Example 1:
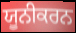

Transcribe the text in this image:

ਯੂਨੀਕਰਨ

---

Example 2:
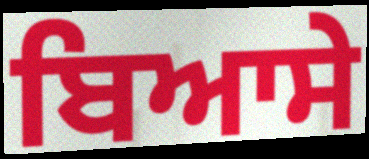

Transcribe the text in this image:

ਬਿਆਸੇ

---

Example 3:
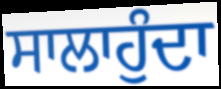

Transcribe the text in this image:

ਸਾਲਾਹੁੰਦਾ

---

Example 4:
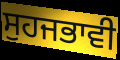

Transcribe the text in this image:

ਸੁਹਜਭਾਵੀ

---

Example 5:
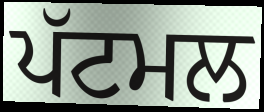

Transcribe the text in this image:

ਪੱਟਮਲ